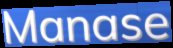
Manase